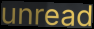
unread